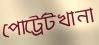
পোর্ট্রেটখানা